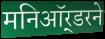
मनिऑर्डरने